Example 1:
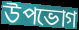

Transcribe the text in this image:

উপভোগ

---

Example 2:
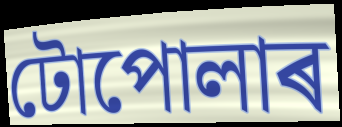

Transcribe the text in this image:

টোপোলাৰ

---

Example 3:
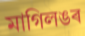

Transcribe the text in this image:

মাগিলঙৰ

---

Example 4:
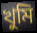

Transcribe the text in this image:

খুমি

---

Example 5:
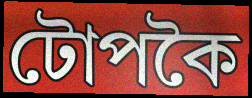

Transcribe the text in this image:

টোপকৈ